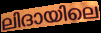
ലിദായിലെ